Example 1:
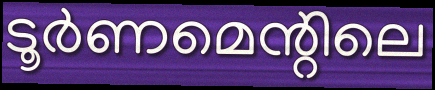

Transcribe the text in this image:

ടൂർണമെന്റിലെ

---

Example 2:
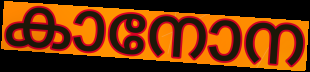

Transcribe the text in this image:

കാനോന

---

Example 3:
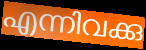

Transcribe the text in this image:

എന്നിവക്കു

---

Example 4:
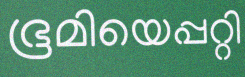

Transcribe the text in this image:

ഭൂമിയെപ്പറ്റി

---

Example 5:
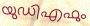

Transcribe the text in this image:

യുഡിഎഫും